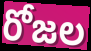
రోజల